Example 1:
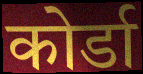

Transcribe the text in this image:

कोर्डा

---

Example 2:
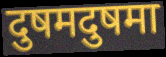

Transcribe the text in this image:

दुषमदुषमा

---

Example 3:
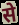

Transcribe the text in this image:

से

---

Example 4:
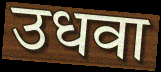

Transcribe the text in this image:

उधवा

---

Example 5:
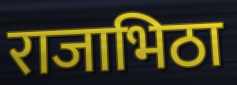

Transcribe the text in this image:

राजाभिठा